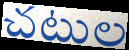
చటుల